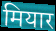
मियार